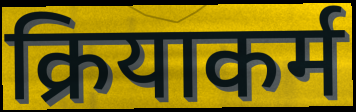
क्रियाकर्म